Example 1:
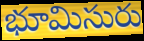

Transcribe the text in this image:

భూమిసురు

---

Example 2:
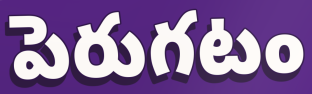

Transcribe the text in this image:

పెరుగటం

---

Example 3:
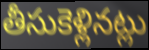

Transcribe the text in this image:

తీసుకెళ్లినట్లు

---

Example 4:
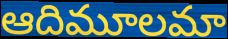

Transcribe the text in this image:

ఆదిమూలమా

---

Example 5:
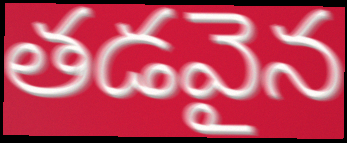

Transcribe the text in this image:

తడవైన